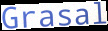
Grasal